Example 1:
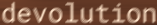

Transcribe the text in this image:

devolution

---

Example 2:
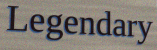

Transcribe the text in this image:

Legendary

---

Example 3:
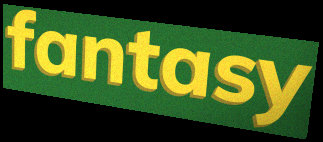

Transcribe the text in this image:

fantasy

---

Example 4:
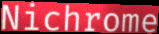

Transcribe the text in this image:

Nichrome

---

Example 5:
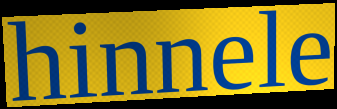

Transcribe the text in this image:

hinnele